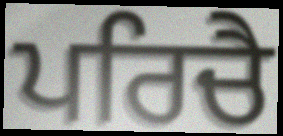
ਪਰਿਚੈ